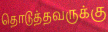
தொடுத்தவருக்கு